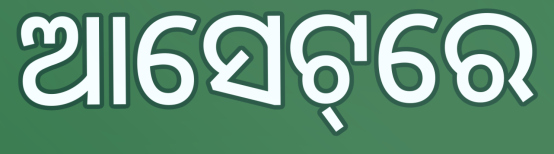
ଆସେଟ୍‌ରେ